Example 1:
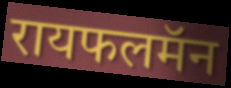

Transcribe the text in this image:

रायफलमॅन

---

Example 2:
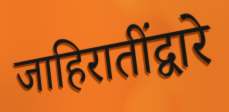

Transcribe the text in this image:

जाहिरातींद्वारे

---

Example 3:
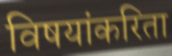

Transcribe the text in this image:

विषयांकरिता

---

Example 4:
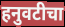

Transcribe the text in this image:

हनुवटीचा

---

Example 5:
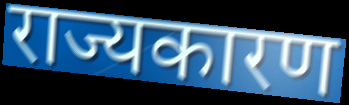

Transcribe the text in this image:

राज्यकारण